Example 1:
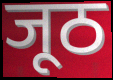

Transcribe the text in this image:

जूठ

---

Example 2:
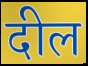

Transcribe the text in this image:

दील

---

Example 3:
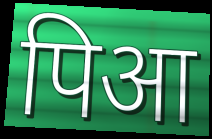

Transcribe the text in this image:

पिआ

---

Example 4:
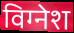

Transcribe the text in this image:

विग्‍नेश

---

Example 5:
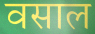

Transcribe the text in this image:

वसाल